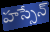
హస్సేన్